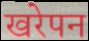
खरेपन